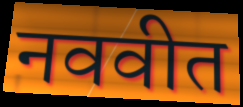
नववीत